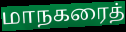
மாநகரைத்